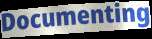
Documenting